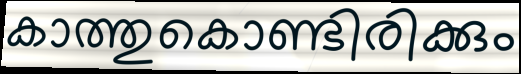
കാത്തുകൊണ്ടിരിക്കും